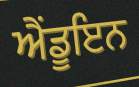
ਐਂਡੂਇਨ